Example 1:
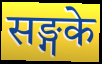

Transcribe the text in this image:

सङ्गके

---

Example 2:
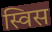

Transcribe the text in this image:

स्विस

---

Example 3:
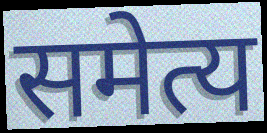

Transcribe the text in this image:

समेत्य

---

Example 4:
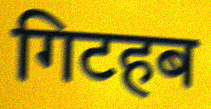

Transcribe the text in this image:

गिटहब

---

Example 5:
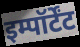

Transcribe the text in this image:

इम्पॉर्टेंट